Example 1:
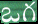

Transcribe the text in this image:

ఒగ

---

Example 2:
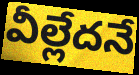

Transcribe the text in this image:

వీల్లేదనే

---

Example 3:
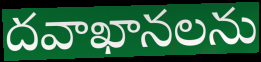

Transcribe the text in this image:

దవాఖానలను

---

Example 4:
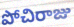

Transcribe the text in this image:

పోచిరాజు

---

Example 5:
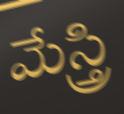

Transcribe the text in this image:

మేస్త్రి